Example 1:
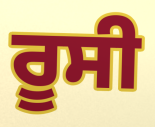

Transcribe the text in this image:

ਰੂਸੀ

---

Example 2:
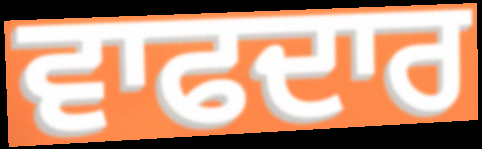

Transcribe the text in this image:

ਵਾਫਦਾਰ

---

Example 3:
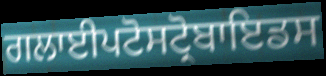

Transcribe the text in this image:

ਗਲਾਈਪਟੋਸਟ੍ਰੋਬਾਇਡਸ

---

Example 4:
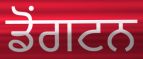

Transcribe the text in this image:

ਡੋਂਗਟਨ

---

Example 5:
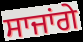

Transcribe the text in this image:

ਸਾਜਾਂਗੇ